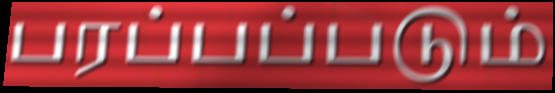
பரப்பப்படும்